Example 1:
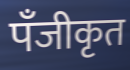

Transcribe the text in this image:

पँजीकृत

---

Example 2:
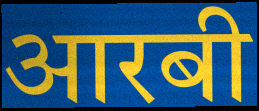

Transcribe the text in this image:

आरबी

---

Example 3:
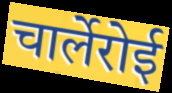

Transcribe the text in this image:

चार्लेरोई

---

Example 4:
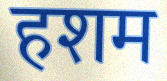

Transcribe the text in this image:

हशम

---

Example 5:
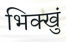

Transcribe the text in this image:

भिक्खुं